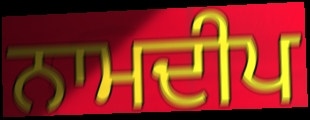
ਨਾਮਦੀਪ